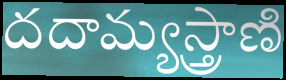
దదామ్యస్త్రాణి